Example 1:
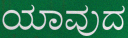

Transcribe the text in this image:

ಯಾವುದ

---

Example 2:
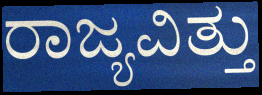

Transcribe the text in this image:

ರಾಜ್ಯವಿತ್ತು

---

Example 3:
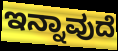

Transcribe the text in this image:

ಇನ್ನಾವುದೆ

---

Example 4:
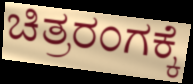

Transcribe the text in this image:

ಚಿತ್ರರಂಗಕ್ಕೆ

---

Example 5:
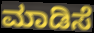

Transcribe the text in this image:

ಮಾಡಿಸೆ